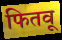
फितवू